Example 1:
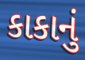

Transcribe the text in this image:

કાકાનું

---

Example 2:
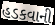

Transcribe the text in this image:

હડકવાની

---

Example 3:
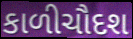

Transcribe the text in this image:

કાળીચૌદશ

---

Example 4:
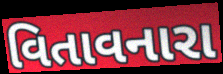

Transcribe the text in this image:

વિતાવનારા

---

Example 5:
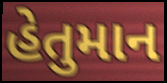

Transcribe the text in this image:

હેતુમાન